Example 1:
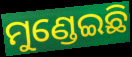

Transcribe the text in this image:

ମୁଣ୍ଡେଇଛି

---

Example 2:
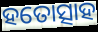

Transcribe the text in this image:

ହତୋତ୍ସାହ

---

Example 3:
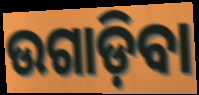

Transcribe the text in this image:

ଉଗାଡ଼ିବା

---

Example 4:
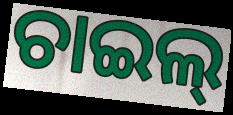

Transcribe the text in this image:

ଚାଇଲ୍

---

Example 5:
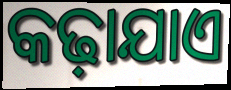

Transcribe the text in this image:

କଢ଼ାଯାଏ